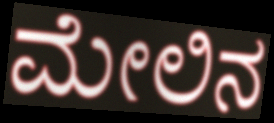
ಮೇಲಿನ